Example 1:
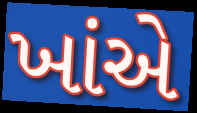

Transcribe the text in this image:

ખાંએ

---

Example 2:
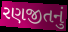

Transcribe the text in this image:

રણજીતનું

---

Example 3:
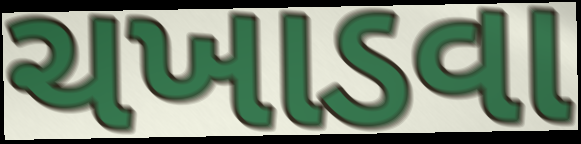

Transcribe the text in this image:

ચખાડવા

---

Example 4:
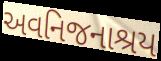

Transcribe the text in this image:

અવનિજનાશ્રય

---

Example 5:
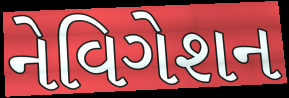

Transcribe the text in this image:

નેવિગેશન